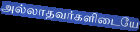
அல்லாதவர்களிடையே